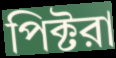
পিক্টরা